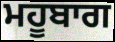
ਮਹੂਬਾਗ